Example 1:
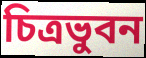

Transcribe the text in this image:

চিত্রভুবন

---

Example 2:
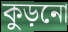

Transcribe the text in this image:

কুড়নো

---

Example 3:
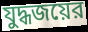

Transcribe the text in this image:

যুদ্ধজয়ের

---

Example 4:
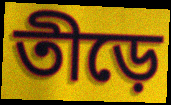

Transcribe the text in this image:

তীড়ে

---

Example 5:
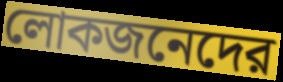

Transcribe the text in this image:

লোকজনেদের